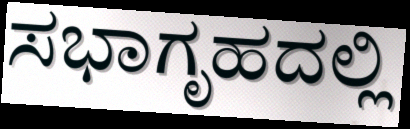
ಸಭಾಗೃಹದಲ್ಲಿ